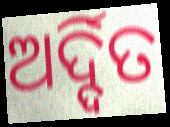
ଅର୍ଦ୍ଦିତ